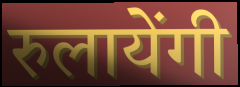
रुलायेंगी